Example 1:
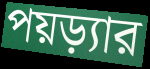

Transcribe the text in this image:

পয়ড়্যার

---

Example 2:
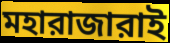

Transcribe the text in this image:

মহারাজারাই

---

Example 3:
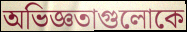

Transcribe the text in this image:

অভিজ্ঞতাগুলোকে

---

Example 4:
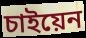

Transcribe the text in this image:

চাইয়েন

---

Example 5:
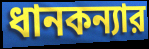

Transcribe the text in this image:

ধানকন্যার